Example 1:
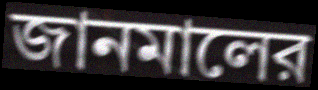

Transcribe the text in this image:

জানমালের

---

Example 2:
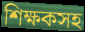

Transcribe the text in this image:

শিক্ষকসহ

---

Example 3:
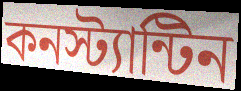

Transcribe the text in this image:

কনস্ট্যান্টিন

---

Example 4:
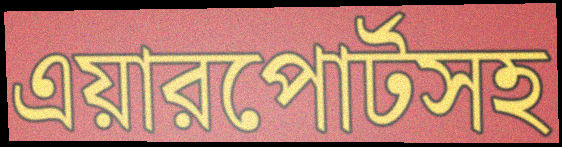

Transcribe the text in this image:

এয়ারপোর্টসহ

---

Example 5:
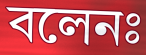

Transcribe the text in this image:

বলেনঃ